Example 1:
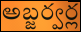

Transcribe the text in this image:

అబ్జర్వర్ల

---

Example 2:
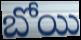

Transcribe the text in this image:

బోయి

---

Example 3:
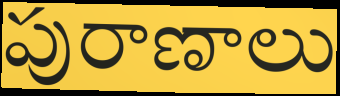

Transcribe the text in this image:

పురాణాలు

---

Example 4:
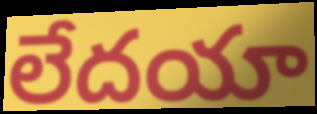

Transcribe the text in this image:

లేదయా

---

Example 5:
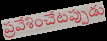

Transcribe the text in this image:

ప్రవేశించేటప్పుడు